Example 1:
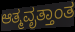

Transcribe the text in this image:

ಆತ್ಮವೃತ್ತಾಂತ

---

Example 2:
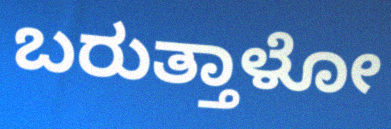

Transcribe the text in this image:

ಬರುತ್ತಾಳೋ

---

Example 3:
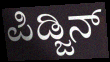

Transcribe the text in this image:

ಪಿಡ್ಜಿನ್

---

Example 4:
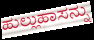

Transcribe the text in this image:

ಹುಲ್ಲುಹಾಸನ್ನು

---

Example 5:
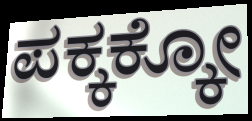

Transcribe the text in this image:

ಪಕ್ಕಕ್ಕೋ